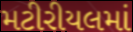
મટીરીયલમાં